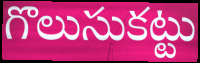
గొలుసుకట్టు